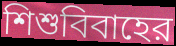
শিশুবিবাহের